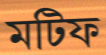
মটিফ